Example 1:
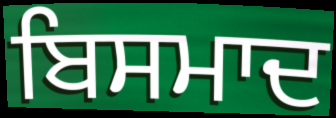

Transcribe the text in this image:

ਬਿਸਮਾਦ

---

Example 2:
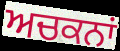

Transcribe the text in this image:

ਅਚਕਨਾਂ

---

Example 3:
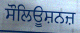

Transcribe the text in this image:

ਸੌਲਿਊਸ਼ਨਜ਼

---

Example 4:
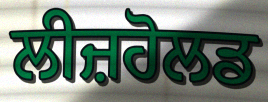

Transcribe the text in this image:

ਲੀਜ਼ਹੋਲਡ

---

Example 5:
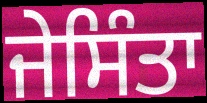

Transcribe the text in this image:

ਜੇਸਿੰਤਾ